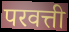
परवत्ती